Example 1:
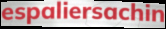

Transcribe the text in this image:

espaliersachin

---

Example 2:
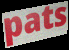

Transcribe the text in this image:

pats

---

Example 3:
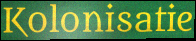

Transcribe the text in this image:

Kolonisatie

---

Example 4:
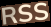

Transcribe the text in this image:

RSS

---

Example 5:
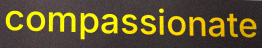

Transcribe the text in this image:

compassionate